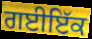
ਗਈਇੱਕ